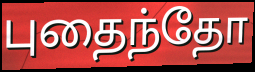
புதைந்தோ